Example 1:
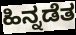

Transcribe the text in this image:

ಹಿನ್ನಡೆತ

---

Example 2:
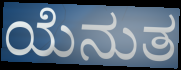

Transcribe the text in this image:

ಯೆನುತ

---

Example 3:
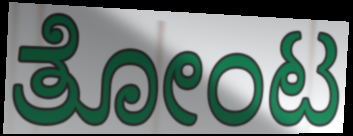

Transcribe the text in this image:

ತೋಂಟ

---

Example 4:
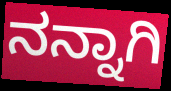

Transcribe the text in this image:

ನನ್ನಾಗಿ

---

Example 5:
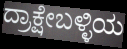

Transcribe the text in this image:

ದ್ರಾಕ್ಷೇಬಳ್ಳಿಯ